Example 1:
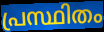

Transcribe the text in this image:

പ്രസ്ഥിതം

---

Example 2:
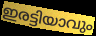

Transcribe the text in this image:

ഇരട്ടിയാവും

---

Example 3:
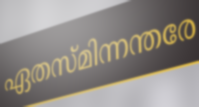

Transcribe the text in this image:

ഏതസ്മിന്നന്തരേ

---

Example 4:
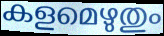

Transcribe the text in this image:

കളമെഴുതും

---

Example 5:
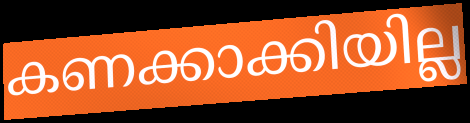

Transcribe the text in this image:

കണക്കാക്കിയില്ല